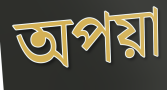
অপয়া